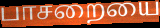
பாசறையை